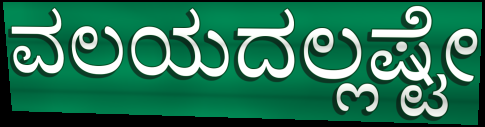
ವಲಯದಲ್ಲಷ್ಟೇ